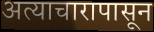
अत्याचारापासून